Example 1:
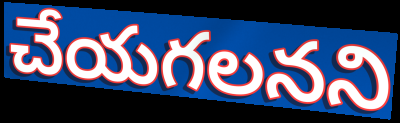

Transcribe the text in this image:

చేయగలనని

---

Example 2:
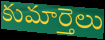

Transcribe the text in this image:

కుమార్తెలు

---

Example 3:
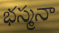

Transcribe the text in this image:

భస్మనా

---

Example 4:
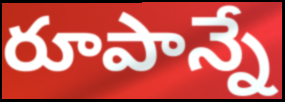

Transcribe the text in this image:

రూపాన్నే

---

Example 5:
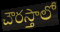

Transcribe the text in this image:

చౌరస్తాలో